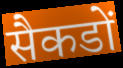
सैकडों